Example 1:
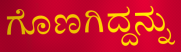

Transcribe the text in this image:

ಗೊಣಗಿದ್ದನ್ನು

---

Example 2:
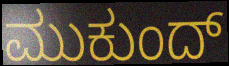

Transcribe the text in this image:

ಮುಕುಂದ್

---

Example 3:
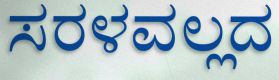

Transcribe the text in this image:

ಸರಳವಲ್ಲದ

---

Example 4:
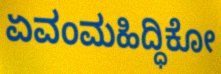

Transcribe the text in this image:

ಏವಂಮಹಿದ್ಧಿಕೋ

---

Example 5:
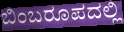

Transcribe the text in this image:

ಬಿಂಬರೂಪದಲ್ಲಿ